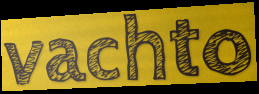
vachto